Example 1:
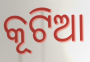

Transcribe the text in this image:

କୂଟିଆ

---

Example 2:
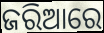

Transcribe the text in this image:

ଜରିଆରେ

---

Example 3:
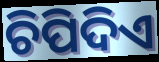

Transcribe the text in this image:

ଚିପିଦିଏ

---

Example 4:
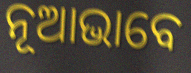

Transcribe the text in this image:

ନୂଆଭାବେ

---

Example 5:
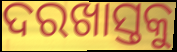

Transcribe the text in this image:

ଦରଖାସ୍ତକୁ